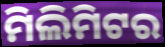
ମିଲିମିଟର